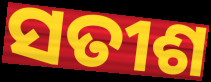
ସତୀଶ